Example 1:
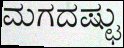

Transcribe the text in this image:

ಮಗದಷ್ಟು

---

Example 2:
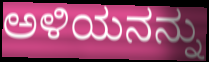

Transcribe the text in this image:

ಅಳಿಯನನ್ನು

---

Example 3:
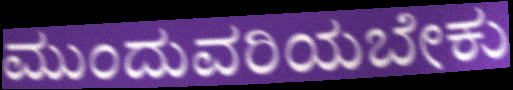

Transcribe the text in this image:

ಮುಂದುವರಿಯಬೇಕು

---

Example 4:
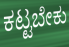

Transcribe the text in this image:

ಕಟ್ಟಬೇಕು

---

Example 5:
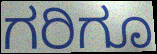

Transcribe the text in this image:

ಗರಿಗೂ